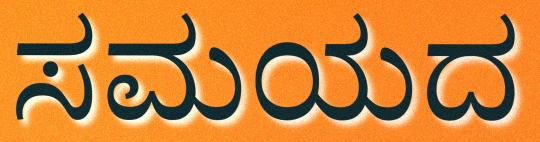
ಸಮಯದ